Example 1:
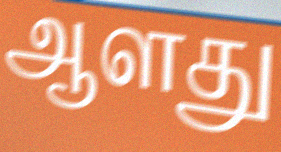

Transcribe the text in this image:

ஆளது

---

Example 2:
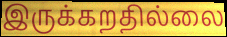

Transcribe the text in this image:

இருக்கறதில்லை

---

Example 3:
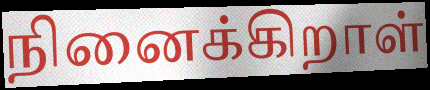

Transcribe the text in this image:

நினைக்கிறாள்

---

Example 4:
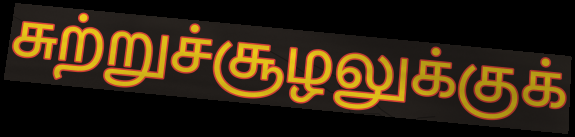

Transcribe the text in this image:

சுற்றுச்சூழலுக்குக்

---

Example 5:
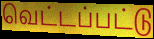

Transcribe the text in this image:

வெட்டப்பட்டு